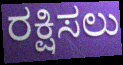
ರಕ್ಷಿಸಲು